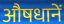
औषधानें